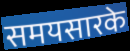
समयसारके